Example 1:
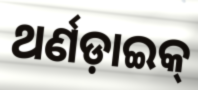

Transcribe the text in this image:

ଥର୍ଣଡ଼ାଇକ୍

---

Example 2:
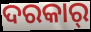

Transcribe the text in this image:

ଦରକାର୍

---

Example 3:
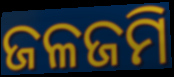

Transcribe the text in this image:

ଜଳଜମି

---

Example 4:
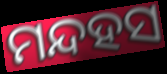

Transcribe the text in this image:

ମନ୍ଦହସ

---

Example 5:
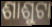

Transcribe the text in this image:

ଶାଶୁଟା